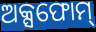
ଅକ୍ସଫୋମ୍